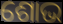
ଶୋଭ